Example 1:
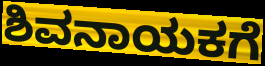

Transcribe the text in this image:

ಶಿವನಾಯಕಗೆ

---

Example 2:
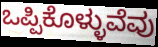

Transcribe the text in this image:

ಒಪ್ಪಿಕೊಳ್ಳುವೆವು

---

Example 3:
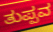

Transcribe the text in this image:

ತುಪ್ಪವ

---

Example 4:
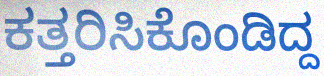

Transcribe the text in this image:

ಕತ್ತರಿಸಿಕೊಂಡಿದ್ದ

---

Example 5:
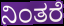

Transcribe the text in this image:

ನಿಂತರೆ